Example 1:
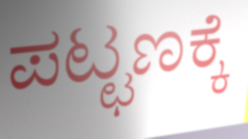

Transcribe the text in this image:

ಪಟ್ಟಣಕ್ಕೆ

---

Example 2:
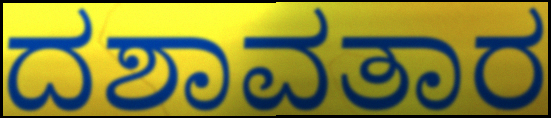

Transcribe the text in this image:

ದಶಾವತಾರ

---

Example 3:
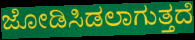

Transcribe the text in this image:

ಜೋಡಿಸಿಡಲಾಗುತ್ತದೆ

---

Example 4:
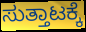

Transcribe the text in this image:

ಸುತ್ತಾಟಕ್ಕೆ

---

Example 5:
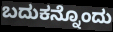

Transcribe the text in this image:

ಬದುಕನ್ನೊಂದು